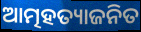
ଆତ୍ମହତ୍ୟାଜନିତ